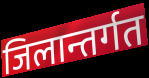
जिलान्तर्गत